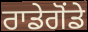
ਰਾਡੇਗੋਂਡੇ